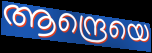
ആന്ദ്രെയെ